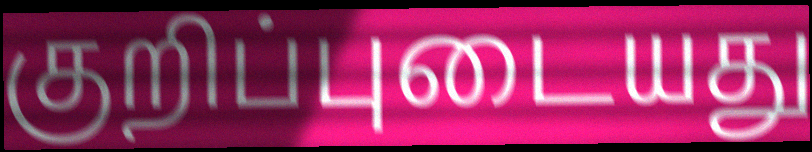
குறிப்புடையது